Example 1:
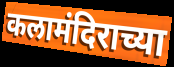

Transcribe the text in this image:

कलामंदिराच्या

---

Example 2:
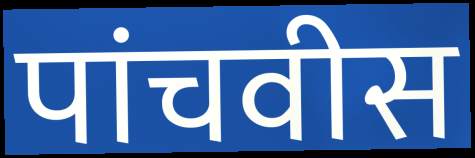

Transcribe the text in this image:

पांचवीस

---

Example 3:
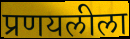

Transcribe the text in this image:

प्रणयलीला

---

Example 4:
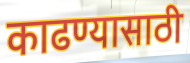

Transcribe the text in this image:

काढण्यासाठी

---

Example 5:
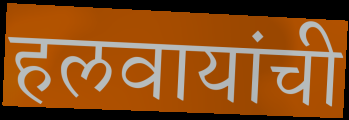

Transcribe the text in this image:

हलवायांची